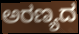
ಅರಣ್ಯದ